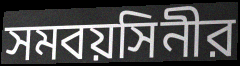
সমবয়সিনীর